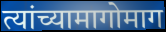
त्यांच्यामागोमाग